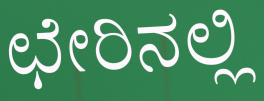
ಛೇರಿನಲ್ಲಿ